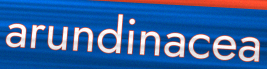
arundinacea